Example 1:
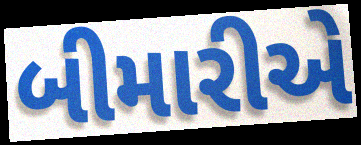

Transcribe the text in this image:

બીમારીએ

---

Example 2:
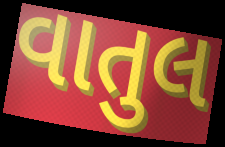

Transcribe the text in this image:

વાતુલ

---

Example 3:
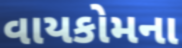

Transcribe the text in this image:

વાયકોમના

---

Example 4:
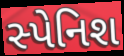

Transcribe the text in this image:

સ્પેનિશ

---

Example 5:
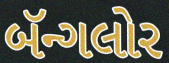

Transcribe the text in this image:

બૅન્ગલોર